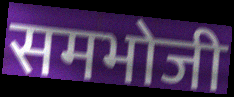
समभोजी